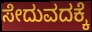
ಸೇದುವದಕ್ಕೆ